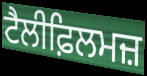
ਟੈਲੀਫ਼ਿਲਮਜ਼